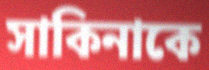
সাকিনাকে